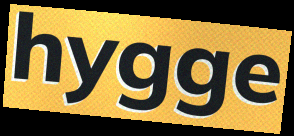
hygge